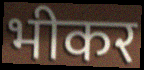
भीकर